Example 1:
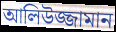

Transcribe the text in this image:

আলিউজ্জামান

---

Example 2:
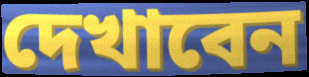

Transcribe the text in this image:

দেখাবেন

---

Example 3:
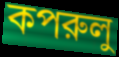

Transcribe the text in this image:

কপরুলু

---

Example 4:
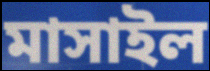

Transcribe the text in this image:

মাসাইল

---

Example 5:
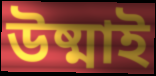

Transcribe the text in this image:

উষ্মাই